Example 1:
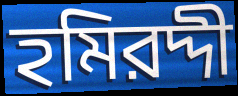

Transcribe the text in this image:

হমিরদ্দী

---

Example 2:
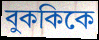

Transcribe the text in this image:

বুককিকে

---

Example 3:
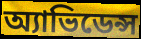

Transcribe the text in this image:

অ্যাভিডেন্স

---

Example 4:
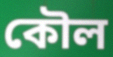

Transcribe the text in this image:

কৌল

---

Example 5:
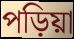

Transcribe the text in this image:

পড়িয়া